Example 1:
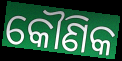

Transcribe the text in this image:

କୌଣିକ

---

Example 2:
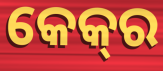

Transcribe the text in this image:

କେକ୍‌ର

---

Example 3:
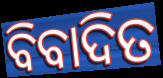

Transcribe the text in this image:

ବିବାଦିତ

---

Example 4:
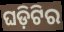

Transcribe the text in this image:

ଘଡ଼ିଟିର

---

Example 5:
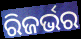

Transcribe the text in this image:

ରିଜର୍ଭର